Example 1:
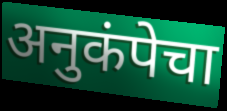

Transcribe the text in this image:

अनुकंपेचा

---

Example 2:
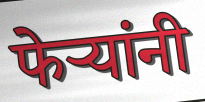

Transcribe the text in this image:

फेऱ्यांनी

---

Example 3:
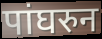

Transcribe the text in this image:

पांघरुन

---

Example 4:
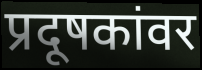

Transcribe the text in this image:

प्रदूषकांवर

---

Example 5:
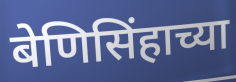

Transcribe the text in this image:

बेणिसिंहाच्या